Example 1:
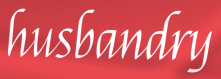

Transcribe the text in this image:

husbandry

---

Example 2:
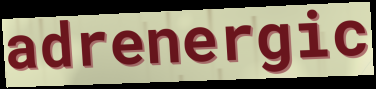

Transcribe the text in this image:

adrenergic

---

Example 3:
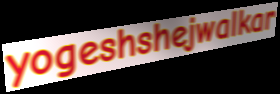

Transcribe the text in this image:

yogeshshejwalkar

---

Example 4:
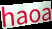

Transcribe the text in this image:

haoa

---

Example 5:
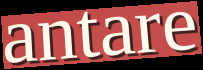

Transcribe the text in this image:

antare